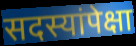
सदस्यांपेक्षा